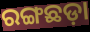
ରଙ୍ଗଛଡ଼ା